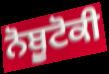
ਨੋਬੂਟੋਕੀ